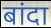
बांदा